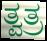
ತ್ವತ್ರ